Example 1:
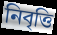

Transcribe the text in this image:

নিবৃত্তি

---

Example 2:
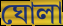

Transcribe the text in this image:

ঘোলা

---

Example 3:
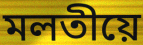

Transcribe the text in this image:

মলতীয়ে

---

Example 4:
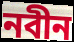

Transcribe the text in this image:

নবীন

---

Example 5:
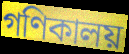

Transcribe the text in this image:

গণিকালয়